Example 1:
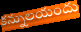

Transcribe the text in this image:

కన్నులయందు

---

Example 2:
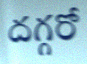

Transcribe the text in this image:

దగ్గరో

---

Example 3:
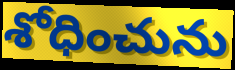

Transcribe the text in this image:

శోధించును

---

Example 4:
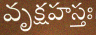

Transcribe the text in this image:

వృక్షహస్తః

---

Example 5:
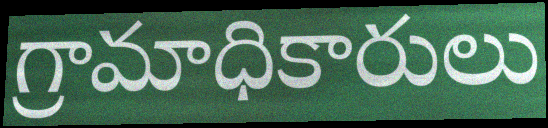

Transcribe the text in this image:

గ్రామాధికారులు